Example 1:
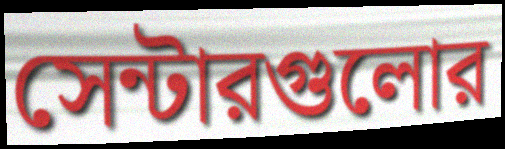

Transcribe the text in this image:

সেন্টারগুলোর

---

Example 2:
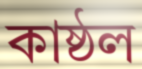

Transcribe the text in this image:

কাষ্ঠল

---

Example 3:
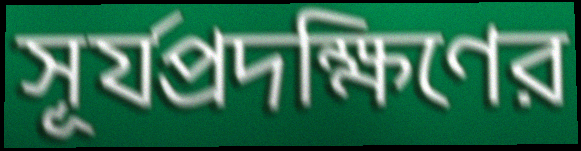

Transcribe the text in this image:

সূর্যপ্রদক্ষিণের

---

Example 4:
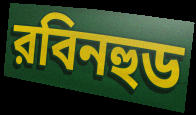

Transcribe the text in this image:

রবিনহুড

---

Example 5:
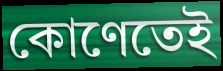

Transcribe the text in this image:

কোণেতেই